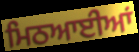
ਮਿਠਆਈਆਂ